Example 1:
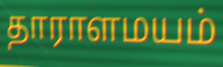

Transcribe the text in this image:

தாராளமயம்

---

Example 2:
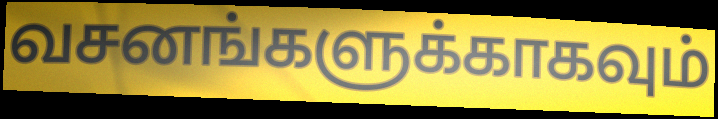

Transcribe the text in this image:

வசனங்களுக்காகவும்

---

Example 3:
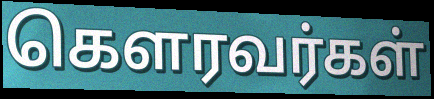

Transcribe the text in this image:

கௌரவர்கள்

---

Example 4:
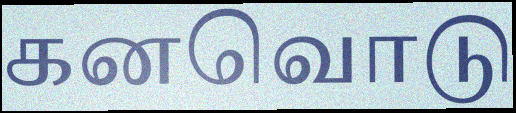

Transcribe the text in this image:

கனவொடு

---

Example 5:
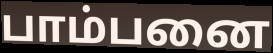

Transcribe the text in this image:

பாம்பனை